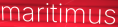
maritimus